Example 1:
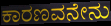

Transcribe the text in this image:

ಕಾರಣವನೇನು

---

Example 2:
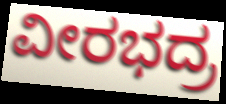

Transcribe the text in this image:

ವೀರಭದ್ರ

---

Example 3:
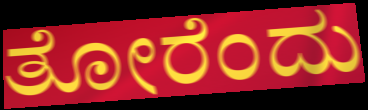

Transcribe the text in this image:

ತೋರೆಂದು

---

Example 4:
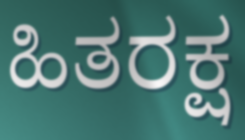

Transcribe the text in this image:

ಹಿತರಕ್ಷ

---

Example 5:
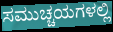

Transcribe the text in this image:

ಸಮುಚ್ಚಯಗಳಲ್ಲಿ